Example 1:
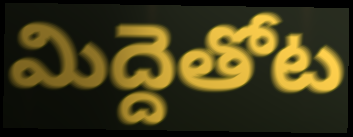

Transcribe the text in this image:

మిద్దెతోట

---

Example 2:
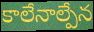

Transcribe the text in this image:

కాలేనాల్పేన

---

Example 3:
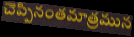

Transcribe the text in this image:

చెప్పినంతమాత్రమున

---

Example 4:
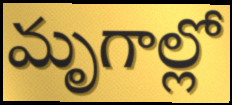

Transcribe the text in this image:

మృగాల్లో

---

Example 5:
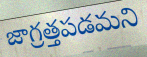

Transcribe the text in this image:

జాగ్రత్తపడమని